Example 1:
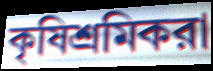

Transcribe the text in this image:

কৃষিশ্রমিকরা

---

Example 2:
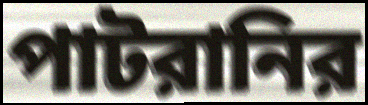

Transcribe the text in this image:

পাটরানির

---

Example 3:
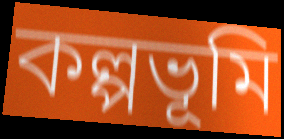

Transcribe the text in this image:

কল্পভূমি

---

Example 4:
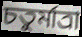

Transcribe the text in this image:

চতুর্মাত্রা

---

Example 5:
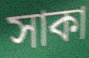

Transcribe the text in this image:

সাকা